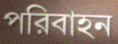
পরিবাহন